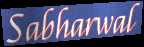
Sabharwal